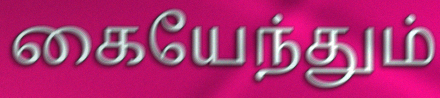
கையேந்தும்